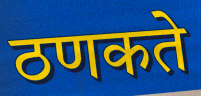
ठणकते